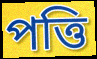
পত্তি